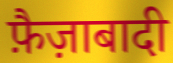
फ़ैज़ाबादी